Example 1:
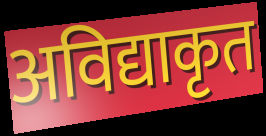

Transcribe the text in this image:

अविद्याकृत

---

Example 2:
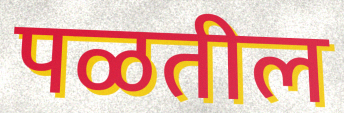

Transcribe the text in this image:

पळतील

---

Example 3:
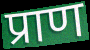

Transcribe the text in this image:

प्राण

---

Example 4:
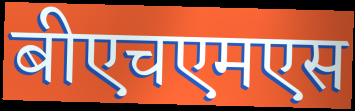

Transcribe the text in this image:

बीएचएमएस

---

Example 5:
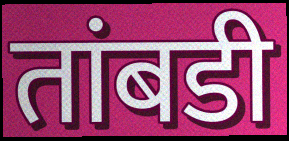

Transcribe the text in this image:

तांबडी